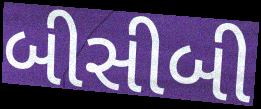
બીસીબી